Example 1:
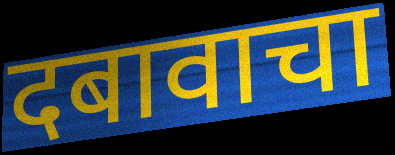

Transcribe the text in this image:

दबावाचा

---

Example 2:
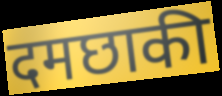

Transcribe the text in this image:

दमछाकी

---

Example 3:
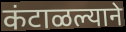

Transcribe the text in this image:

कंटाळल्याने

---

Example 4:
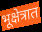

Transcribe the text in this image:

भूक्षेत्रात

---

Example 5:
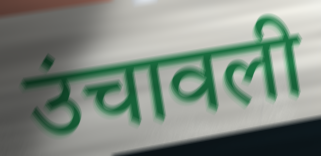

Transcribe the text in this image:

उंचावली